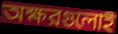
অক্ষরগুলোই